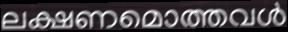
ലക്ഷണമൊത്തവൾ